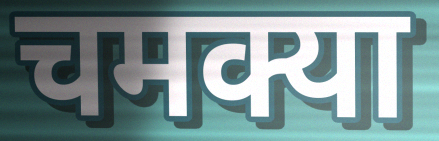
चमक्या